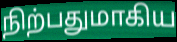
நிற்பதுமாகிய